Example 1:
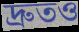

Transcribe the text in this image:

দ্রুতও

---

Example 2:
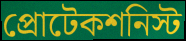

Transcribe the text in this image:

প্রোটেকশনিস্ট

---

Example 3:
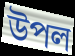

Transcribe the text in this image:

উপল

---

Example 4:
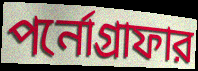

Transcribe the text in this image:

পর্নোগ্রাফার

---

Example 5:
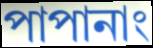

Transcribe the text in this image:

পাপানাং